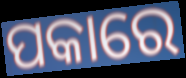
ପକାରେ